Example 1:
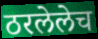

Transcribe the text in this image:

ठरलेलेच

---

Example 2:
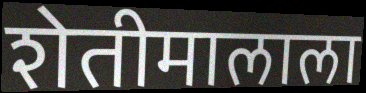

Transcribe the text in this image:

शेतीमालाला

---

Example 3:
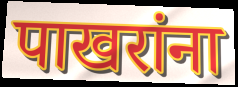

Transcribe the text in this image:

पाखरांना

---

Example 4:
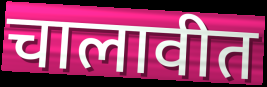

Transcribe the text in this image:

चालावीत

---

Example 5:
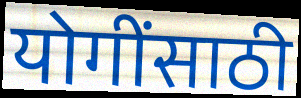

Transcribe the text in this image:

योगींसाठी